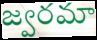
జ్వరమా